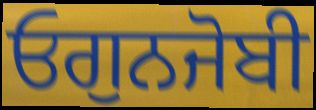
ਓਗੁਨਜੋਬੀ